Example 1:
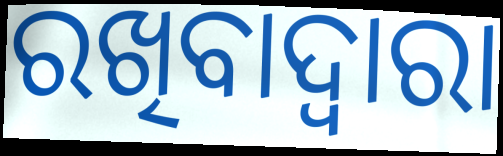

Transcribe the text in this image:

ରଖିବାଦ୍ୱାରା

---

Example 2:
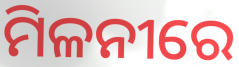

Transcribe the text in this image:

ମିଳନୀରେ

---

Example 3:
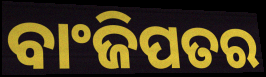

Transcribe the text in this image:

ବାଂଜିପତର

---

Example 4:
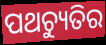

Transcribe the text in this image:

ପଥଚ୍ୟୁତିର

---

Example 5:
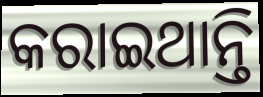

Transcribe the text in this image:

କରାଇଥାନ୍ତି